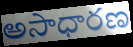
అసాధారణ